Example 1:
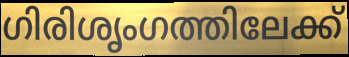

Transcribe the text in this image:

ഗിരിശൃംഗത്തിലേക്ക്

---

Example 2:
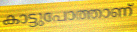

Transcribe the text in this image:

കാട്ടുപോത്താണ്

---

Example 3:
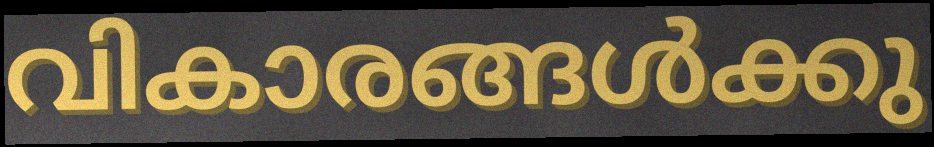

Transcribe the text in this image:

വികാരങ്ങൾക്കു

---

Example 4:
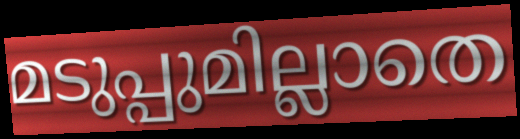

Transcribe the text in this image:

മടുപ്പുമില്ലാതെ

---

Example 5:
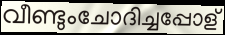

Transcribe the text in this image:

വീണ്ടുംചോദിച്ചപ്പോള്